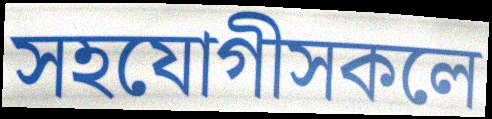
সহযোগীসকলে